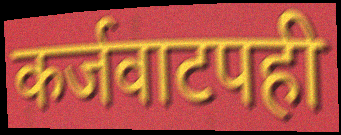
कर्जवाटपही